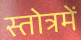
स्तोत्रमें